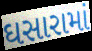
ઘસારામાં